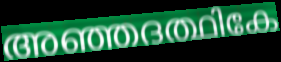
അഞ്ഞദത്ഥികേ